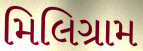
મિલિગ્રામ